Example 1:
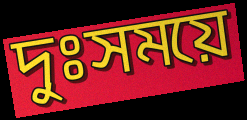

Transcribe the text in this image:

দুঃসময়ে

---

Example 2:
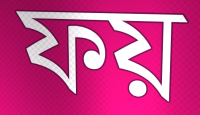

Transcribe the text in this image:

ফয়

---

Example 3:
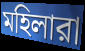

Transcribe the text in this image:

মহিলারা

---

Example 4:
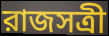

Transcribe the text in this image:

রাজসত্রী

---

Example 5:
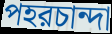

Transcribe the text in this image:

পহরচান্দা